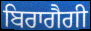
ਬਿਰਾਗੈਗੀ